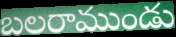
బలరాముండు